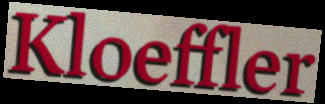
Kloeffler